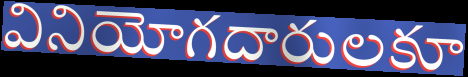
వినియోగదారులకూ